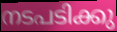
നടപടിക്കു